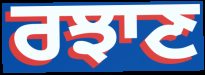
ਰਝਾਣ